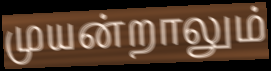
முயன்றாலும்